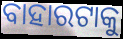
ବାହାରଟାକୁ